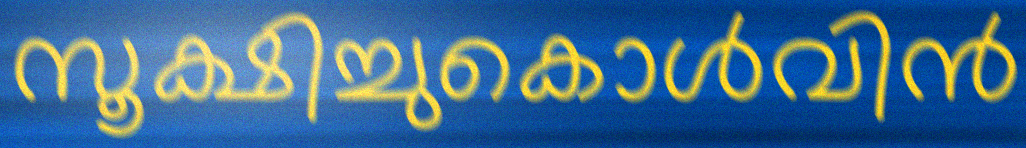
സൂക്ഷിച്ചുകൊൾവിൻ